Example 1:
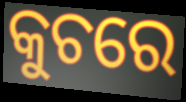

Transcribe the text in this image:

କୁଚରେ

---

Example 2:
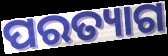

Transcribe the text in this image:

ପରତ୍ୟାଗ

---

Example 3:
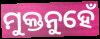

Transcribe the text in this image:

ମୁକ୍ତନୁହେଁ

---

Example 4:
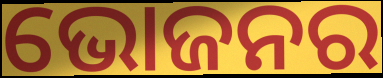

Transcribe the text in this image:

ଭୋଜନର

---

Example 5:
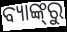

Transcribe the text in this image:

ବ୍ୟାଙ୍କ୍‌ରୁ